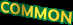
COMMON